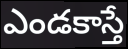
ఎండకాస్తే